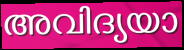
അവിദ്യയാ